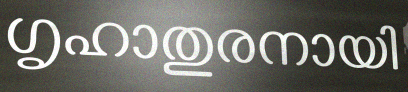
ഗൃഹാതുരനായി